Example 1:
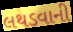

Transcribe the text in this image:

લથડવાની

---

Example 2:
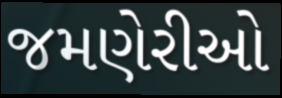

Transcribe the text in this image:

જમણેરીઓ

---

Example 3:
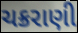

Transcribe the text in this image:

ચક્રરાણી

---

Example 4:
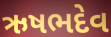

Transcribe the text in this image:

ઋષભદેવ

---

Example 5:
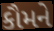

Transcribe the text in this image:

કૌમને